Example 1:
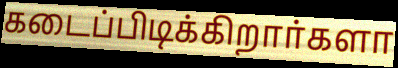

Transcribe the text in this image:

கடைப்பிடிக்கிறார்களா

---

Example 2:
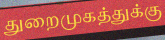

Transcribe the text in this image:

துறைமுகத்துக்கு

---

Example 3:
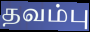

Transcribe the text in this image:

தவம்பு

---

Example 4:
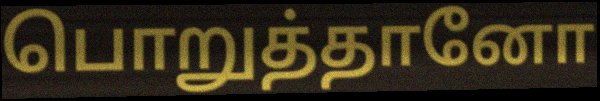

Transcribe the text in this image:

பொறுத்தானோ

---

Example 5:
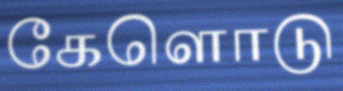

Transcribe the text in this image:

கேளொடு